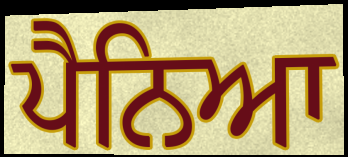
ਪੈਨਿਆ